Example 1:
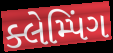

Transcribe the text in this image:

ક્લેમ્પિંગ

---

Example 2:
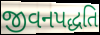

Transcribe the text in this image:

જીવનપદ્ધતિ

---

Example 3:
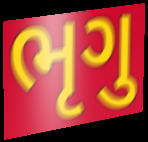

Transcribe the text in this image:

ભૃગુ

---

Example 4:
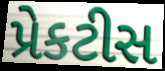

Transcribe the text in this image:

પ્રેકટીસ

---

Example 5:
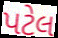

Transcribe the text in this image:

પટેલ